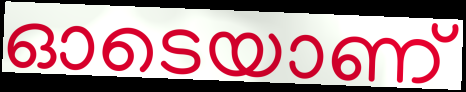
ഓടെയാണ്